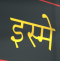
इस्मे